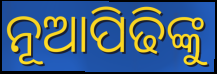
ନୂଆପିଢିଙ୍କୁ